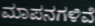
ಮಾಪನಗಳಿವೆ